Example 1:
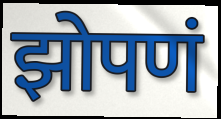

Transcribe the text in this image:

झोपणं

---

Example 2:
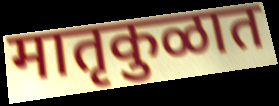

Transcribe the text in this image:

मातृकुळात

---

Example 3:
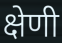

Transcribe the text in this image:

क्षेणी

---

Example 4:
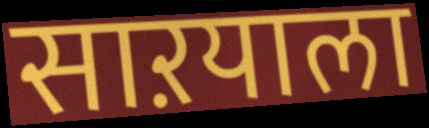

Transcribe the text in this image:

साऱयाला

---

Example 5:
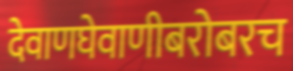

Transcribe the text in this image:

देवाणघेवाणीबरोबरच